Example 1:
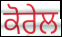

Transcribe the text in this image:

ਕੋਰੇਲ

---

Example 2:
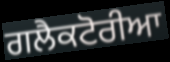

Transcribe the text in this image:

ਗਲੈਕਟੋਰੀਆ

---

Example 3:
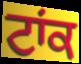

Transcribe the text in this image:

ਟਾਂਕ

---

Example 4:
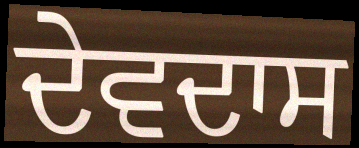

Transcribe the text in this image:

ਦੇਵਦਾਸ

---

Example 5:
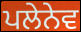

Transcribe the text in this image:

ਪਲੇਨੇਵ